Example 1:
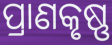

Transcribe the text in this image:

ପ୍ରାଣକୃଷ୍ଣ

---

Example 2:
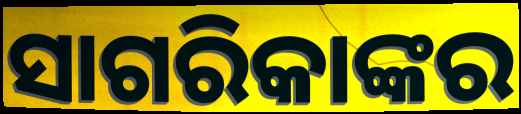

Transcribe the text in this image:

ସାଗରିକାଙ୍କର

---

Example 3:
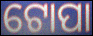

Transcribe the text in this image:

ଟୋପା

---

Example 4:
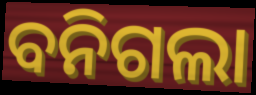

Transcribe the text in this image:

ବନିଗଲା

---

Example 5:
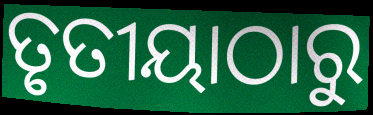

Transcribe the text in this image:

ତୃତୀୟାଠାରୁ